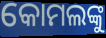
କୋମଲଙ୍କୁ